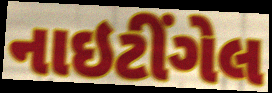
નાઇટીંગેલ